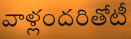
వాళ్లందరితోటీ